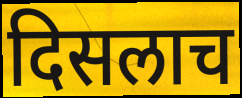
दिसलाच